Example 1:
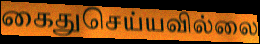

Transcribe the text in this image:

கைதுசெய்யவில்லை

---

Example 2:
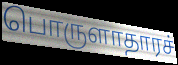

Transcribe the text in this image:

பொருளாதாரச்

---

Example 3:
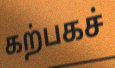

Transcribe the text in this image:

கற்பகச்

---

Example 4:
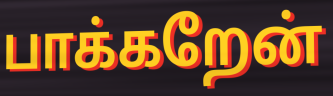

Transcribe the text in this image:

பாக்கறேன்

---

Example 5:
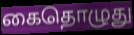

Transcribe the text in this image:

கைதொழுது